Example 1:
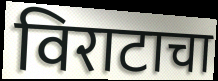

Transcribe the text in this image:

विराटाचा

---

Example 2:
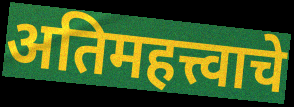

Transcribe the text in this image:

अतिमहत्त्वाचे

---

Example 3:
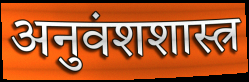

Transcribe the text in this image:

अनुवंशशास्त्र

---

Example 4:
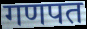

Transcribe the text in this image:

गणपत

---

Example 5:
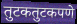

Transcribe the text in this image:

तुटकतुटकपणे